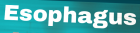
Esophagus